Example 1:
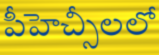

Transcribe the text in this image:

పీహెచ్సీలలో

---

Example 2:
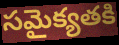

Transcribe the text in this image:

సమైక్యతకి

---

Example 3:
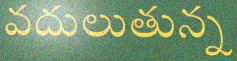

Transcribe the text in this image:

వదులుతున్న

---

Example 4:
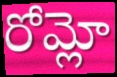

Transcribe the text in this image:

రోమ్లో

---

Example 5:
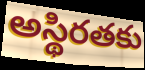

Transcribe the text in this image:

అస్థిరతకు